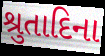
શ્રુતાદિના